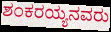
ಶಂಕರಯ್ಯನವರು